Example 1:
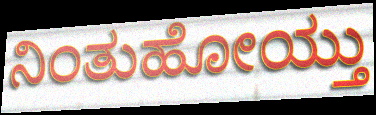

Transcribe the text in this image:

ನಿಂತುಹೋಯ್ತು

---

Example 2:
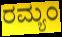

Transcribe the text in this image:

ರಮ್ಯಂ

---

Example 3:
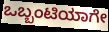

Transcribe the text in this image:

ಒಬ್ಬಂಟಿಯಾಗೇ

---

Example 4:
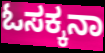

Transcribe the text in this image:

ಓಸಕ್ಕನಾ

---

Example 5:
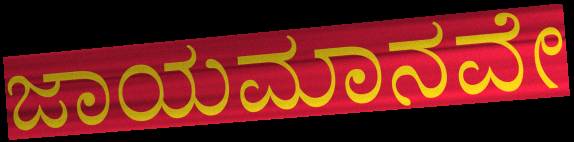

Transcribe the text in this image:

ಜಾಯಮಾನವೇ